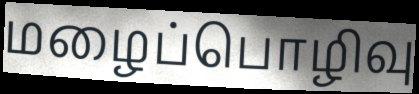
மழைப்பொழிவு